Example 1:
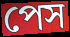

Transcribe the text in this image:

পেস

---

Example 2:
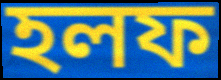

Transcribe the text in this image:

হলফ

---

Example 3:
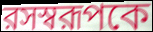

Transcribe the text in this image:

রসস্বরূপকে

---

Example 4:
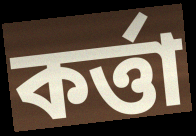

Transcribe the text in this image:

কর্ত্তা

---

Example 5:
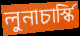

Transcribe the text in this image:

লুনাচার্স্কি